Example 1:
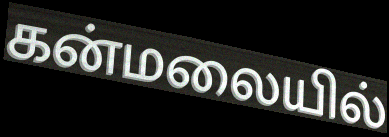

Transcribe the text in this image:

கன்மலையில்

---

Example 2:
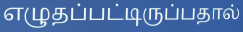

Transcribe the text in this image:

எழுதப்பட்டிருப்பதால்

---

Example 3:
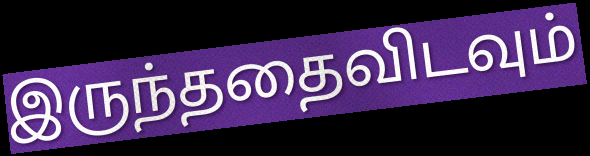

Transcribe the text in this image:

இருந்ததைவிடவும்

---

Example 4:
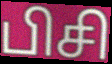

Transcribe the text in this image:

பிசி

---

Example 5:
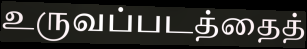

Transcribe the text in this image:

உருவப்படத்தைத்